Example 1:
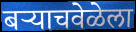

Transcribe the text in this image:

बर्‍याचवेळेला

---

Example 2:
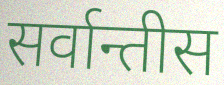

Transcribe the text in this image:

सर्वान्तीस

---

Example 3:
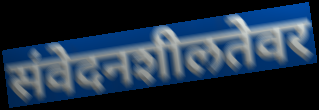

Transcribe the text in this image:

संवेदनशीलतेवर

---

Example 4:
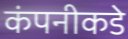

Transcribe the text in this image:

कंपनीकडे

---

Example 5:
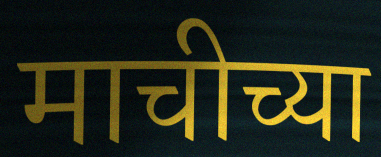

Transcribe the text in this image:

माचीच्या